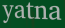
yatna